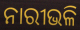
ନାରୀଭଳି